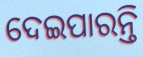
ଦେଇପାରନ୍ତି